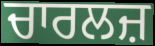
ਚਾਰਲਜ਼